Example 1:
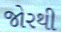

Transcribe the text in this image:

જોરથી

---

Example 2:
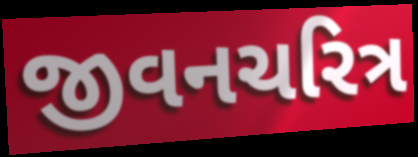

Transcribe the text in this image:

જીવનચરિત્ર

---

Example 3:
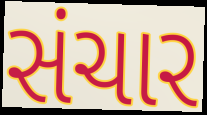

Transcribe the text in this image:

સંચાર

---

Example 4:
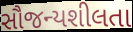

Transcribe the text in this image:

સૌજન્યશીલતા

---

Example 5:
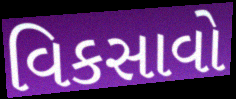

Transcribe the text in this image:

વિકસાવો